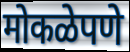
मोकळेपणे